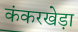
कंकरखेड़ा